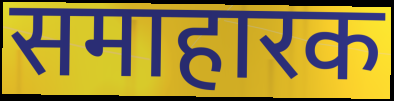
समाहारक